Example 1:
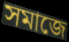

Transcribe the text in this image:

সমাজে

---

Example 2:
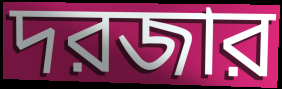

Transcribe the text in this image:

দরজার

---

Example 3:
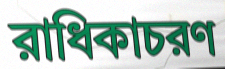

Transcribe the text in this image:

রাধিকাচরণ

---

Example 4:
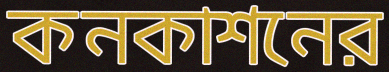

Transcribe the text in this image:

কনকাশনের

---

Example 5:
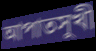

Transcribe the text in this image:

আপাতসুখী